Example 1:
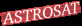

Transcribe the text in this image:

ASTROSAT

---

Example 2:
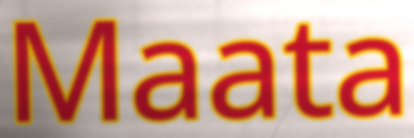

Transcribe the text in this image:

Maata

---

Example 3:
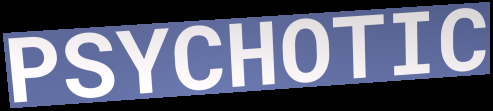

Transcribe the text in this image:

PSYCHOTIC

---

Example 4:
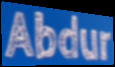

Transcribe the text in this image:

Abdur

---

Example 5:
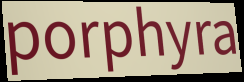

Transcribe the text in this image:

porphyra